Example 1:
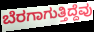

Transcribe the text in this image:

ಬೆರಗಾಗುತ್ತಿದ್ದೆವು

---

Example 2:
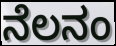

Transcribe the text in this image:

ನೆಲನಂ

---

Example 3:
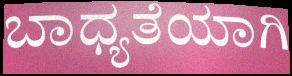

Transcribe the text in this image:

ಬಾಧ್ಯತೆಯಾಗಿ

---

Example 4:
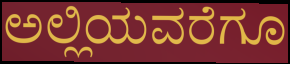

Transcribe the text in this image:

ಅಲ್ಲಿಯವರೆಗೂ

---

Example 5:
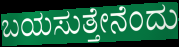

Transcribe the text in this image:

ಬಯಸುತ್ತೇನೆಂದು